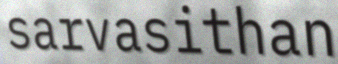
sarvasithan